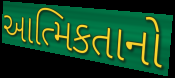
આત્મિકતાનો